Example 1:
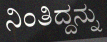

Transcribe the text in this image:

ನಿಂತಿದ್ದನ್ನು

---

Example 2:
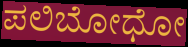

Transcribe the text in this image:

ಪಲಿಬೋಧೋ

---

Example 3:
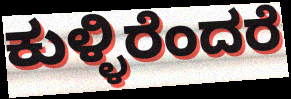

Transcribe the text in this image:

ಕುಳ್ಳಿರೆಂದರೆ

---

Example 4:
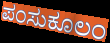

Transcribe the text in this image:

ಪಂಸುಕೂಲಂ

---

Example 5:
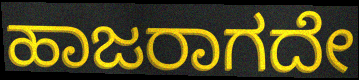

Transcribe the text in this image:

ಹಾಜರಾಗದೇ